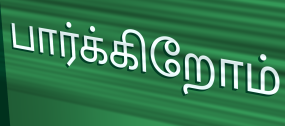
பார்க்கிறோம்